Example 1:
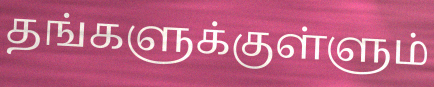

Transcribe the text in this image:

தங்களுக்குள்ளும்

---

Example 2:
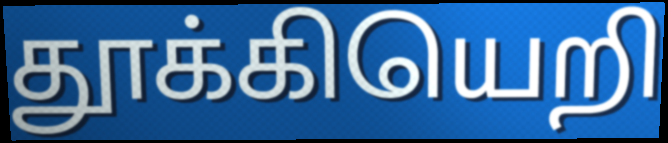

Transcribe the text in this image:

தூக்கியெறி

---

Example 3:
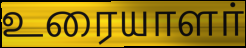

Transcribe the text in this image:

உரையாளர்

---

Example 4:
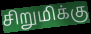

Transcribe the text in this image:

சிறுமிக்கு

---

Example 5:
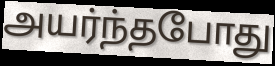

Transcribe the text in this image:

அயர்ந்தபோது